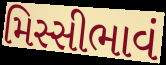
મિસ્સીભાવં